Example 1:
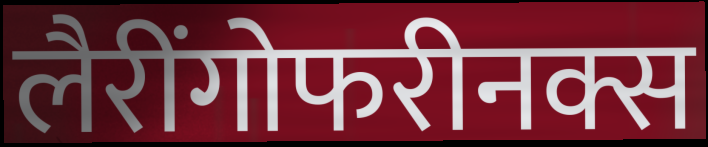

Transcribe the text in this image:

लैरींगोफरीनक्स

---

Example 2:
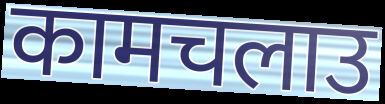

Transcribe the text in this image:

कामचलाउ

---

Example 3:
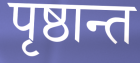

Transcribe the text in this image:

पृष्ठान्त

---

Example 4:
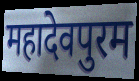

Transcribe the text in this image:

महादेवपुरम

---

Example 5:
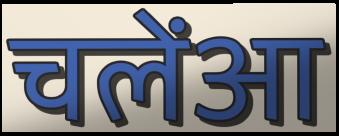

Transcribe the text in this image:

चलेंआ